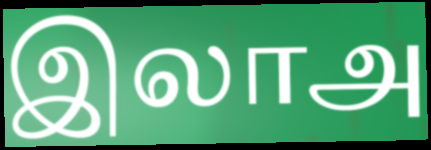
இலாஅ